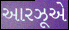
આરઝૂએ